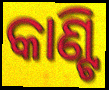
କାଣ୍ଟି